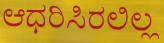
ಆಧರಿಸಿರಲಿಲ್ಲ